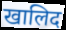
खालिद